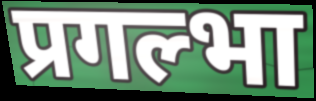
प्रगल्भा